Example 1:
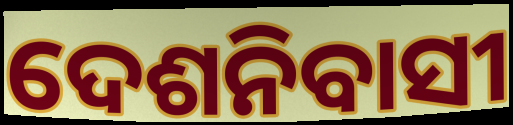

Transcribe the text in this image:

ଦେଶନିବାସୀ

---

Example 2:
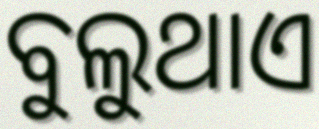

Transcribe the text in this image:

ବୁଲୁଥାଏ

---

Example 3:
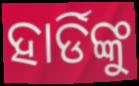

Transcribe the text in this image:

ହାର୍ଡିଙ୍କୁ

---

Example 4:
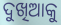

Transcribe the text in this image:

ଦୁଖିଆକୁ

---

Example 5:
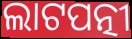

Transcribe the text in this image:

ଲାଟପତ୍ନୀ